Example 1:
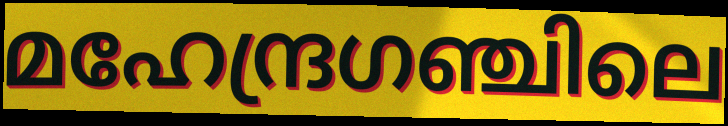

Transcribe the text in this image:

മഹേന്ദ്രഗഞ്ചിലെ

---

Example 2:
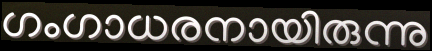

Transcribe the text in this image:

ഗംഗാധരനായിരുന്നു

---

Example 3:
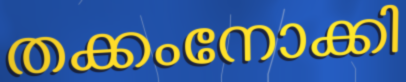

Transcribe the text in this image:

തക്കംനോക്കി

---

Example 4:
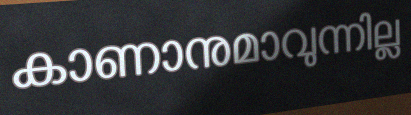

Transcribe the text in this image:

കാണാനുമാവുന്നില്ല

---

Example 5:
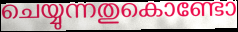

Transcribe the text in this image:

ചെയ്യുന്നതുകൊണ്ടോ